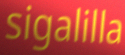
sigalilla